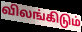
விலங்கிடும்